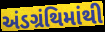
અંડગ્રંથિમાંથી